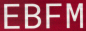
EBFM